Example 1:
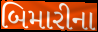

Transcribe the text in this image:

બિમારીના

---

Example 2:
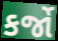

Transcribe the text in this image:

કર્જો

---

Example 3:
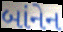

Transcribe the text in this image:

બાંનેન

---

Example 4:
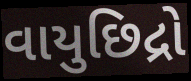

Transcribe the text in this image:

વાયુછિદ્રો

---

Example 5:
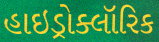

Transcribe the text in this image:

હાઇડ્રોક્લૉરિક